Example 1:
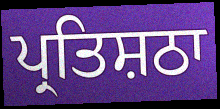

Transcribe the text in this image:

ਪ੍ਰਤਿਸ਼ਠਾ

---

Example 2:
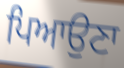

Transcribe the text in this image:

ਪਿਆਉਣਾ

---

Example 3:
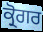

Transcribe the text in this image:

ਕ੍ਰੋਗਰ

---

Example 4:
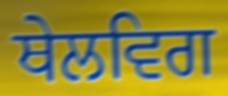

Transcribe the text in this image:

ਥੇਲਵਿਗ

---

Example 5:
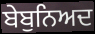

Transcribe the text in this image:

ਬੇਬੁਨਿਅਦ